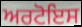
ਅਰਟੋਇਸ